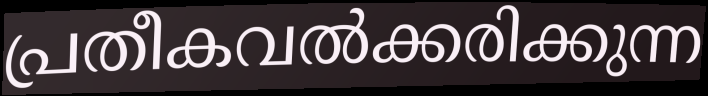
പ്രതീകവൽക്കരിക്കുന്ന